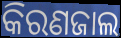
କିରଣଜାଲ